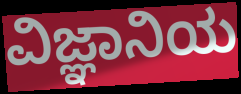
ವಿಜ್ಞಾನಿಯ